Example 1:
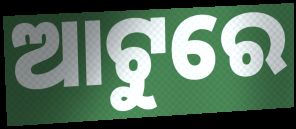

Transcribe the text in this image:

ଆଟୁରେ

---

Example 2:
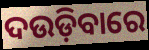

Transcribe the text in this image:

ଦଉଡ଼ିବାରେ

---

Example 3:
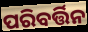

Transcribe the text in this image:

ପରିବର୍ତ୍ତିନ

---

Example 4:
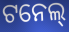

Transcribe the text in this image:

ଟନେଲ୍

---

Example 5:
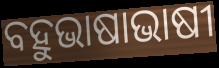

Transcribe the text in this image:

ବହୁଭାଷାଭାଷୀ